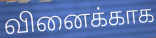
வினைக்காக